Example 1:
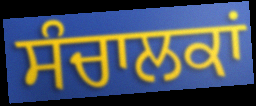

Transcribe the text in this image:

ਸੰਚਾਲਕਾਂ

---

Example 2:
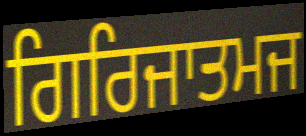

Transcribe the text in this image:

ਗਿਰਿਜਾਤਮਜ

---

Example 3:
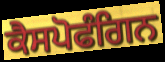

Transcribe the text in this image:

ਕੈਸਪੋਫੰਗਿਨ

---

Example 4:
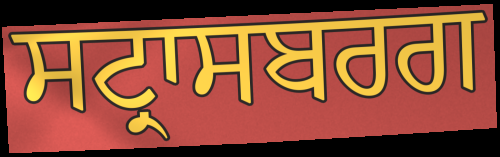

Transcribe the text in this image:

ਸਟ੍ਰਾਸਬਰਗ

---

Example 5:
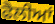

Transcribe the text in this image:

ਫੈਲੀਆਂ